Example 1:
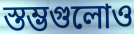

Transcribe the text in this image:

স্তম্ভগুলোও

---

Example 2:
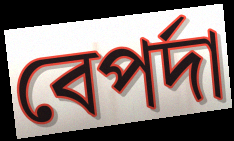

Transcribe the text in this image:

বেপর্দা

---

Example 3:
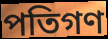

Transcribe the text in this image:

পতিগণ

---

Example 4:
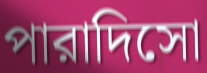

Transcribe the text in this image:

পারাদিসো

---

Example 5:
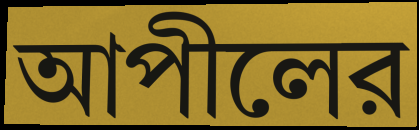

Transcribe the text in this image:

আপীলের